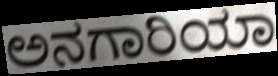
ಅನಗಾರಿಯಾ